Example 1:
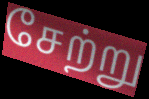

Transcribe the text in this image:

சேற்று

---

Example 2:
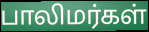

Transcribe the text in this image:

பாலிமர்கள்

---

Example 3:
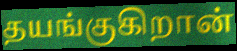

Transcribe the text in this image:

தயங்குகிறான்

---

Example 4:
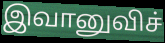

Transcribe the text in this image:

இவானுவிச்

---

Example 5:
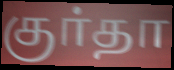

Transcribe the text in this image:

குர்தா